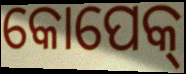
କୋପେକ୍